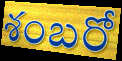
శంబరో